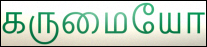
கருமையோ